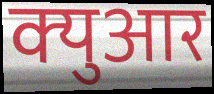
क्युआर